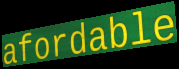
afordable